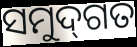
ସମୁଦ୍‌ଗତ